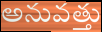
అనువత్తు